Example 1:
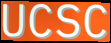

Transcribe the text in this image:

UCSC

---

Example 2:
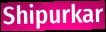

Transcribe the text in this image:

Shipurkar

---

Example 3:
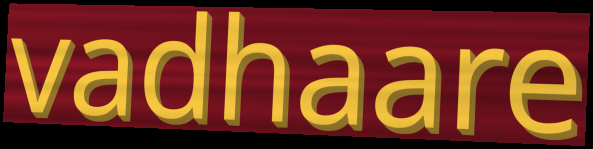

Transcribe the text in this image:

vadhaare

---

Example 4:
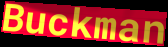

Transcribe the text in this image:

Buckman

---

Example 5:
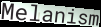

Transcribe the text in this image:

Melanism